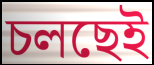
চলছেই